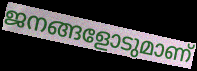
ജനങ്ങളോടുമാണ്